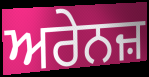
ਅਰੇਨਜ਼